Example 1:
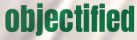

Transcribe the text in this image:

objectified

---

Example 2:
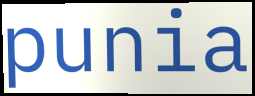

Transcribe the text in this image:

punia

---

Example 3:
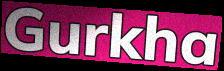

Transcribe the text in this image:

Gurkha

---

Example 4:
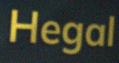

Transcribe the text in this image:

Hegal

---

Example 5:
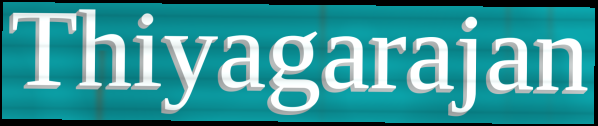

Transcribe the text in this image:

Thiyagarajan